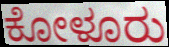
ಕೋಳೂರು